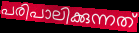
പരിപാലിക്കുന്നത്